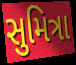
સુમિત્રા